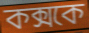
কক্সকে